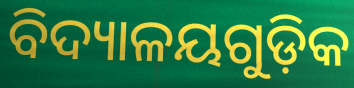
ବିଦ୍ୟାଳୟଗୁଡ଼ିକ